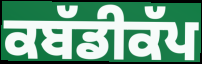
ਕਬੱਡੀਕੱਪ